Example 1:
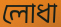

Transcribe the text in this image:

লোধা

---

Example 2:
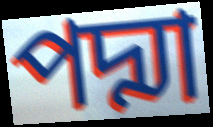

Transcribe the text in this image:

পদ্মা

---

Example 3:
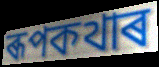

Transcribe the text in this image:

ৰূপকথাৰ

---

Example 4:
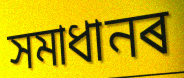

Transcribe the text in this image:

সমাধানৰ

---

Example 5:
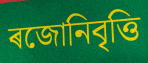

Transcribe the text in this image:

ৰজোনিবৃত্তি